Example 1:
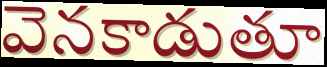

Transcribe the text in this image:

వెనకాడుతూ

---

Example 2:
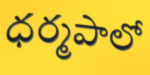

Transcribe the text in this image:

ధర్మపాలో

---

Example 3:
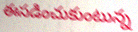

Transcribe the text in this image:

ఈసడించుకుంటున్న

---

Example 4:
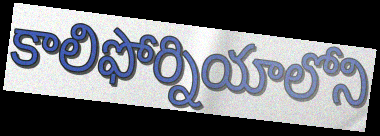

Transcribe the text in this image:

కాలిఫోర్నియాలోని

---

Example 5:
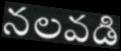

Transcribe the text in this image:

నలవడి